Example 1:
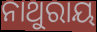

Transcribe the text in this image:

ନାଥୁରାୟ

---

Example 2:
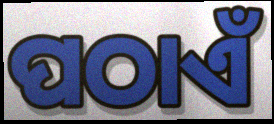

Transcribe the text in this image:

ପଠାଏଁ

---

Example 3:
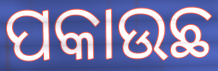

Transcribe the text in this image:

ପକାଉଛ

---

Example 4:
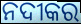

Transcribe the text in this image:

ନଦୀକର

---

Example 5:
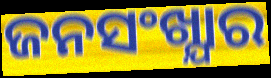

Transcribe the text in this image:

ଜନସଂଖ୍ଯାର